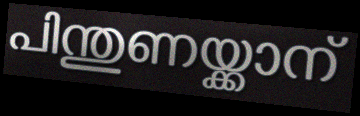
പിന്തുണയ്ക്കാന്